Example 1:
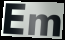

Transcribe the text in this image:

Em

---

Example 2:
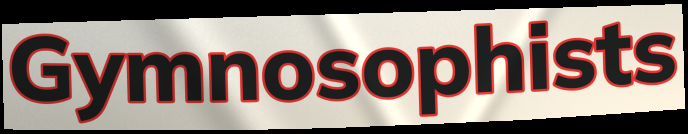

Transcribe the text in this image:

Gymnosophists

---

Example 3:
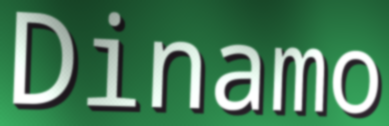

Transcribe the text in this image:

Dinamo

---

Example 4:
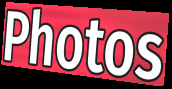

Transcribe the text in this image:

Photos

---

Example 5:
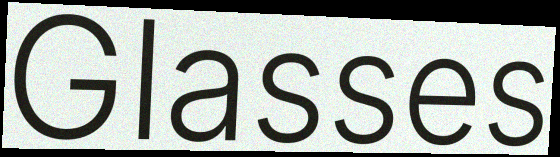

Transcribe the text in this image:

Glasses